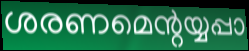
ശരണമെന്റയ്യപ്പാ